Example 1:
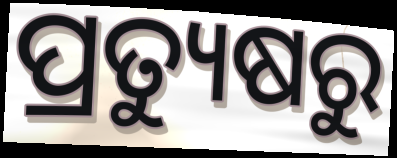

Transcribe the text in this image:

ପ୍ରତ୍ୟୁଷରୁ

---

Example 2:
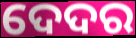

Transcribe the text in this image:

ଦେଦର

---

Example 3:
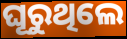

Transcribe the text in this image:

ଘୂରୁଥିଲେ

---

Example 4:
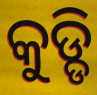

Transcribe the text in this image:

କୁଡ୍ଡି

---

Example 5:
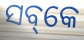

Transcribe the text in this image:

ସବ୍‌କେ